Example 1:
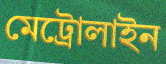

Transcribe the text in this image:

মেট্রোলাইন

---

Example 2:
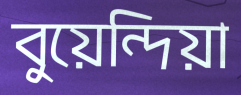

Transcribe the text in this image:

বুয়েন্দিয়া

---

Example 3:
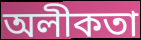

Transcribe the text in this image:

অলীকতা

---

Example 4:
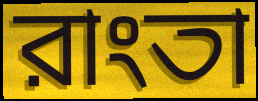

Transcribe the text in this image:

রাংতা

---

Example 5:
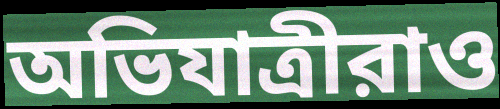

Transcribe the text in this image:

অভিযাত্রীরাও